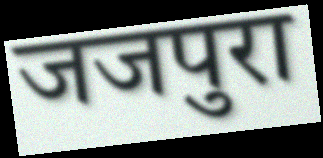
जजपुरा